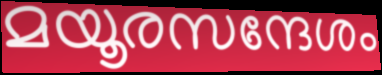
മയൂരസന്ദേശം